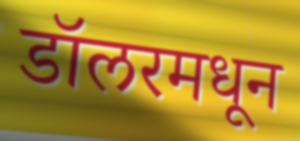
डॉलरमधून